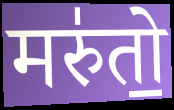
मरु॑तो॒